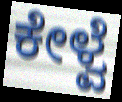
ಕೇಳ್ವೆ